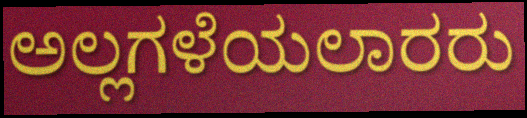
ಅಲ್ಲಗಳೆಯಲಾರರು